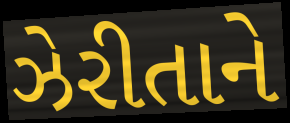
ઝેરીતાને